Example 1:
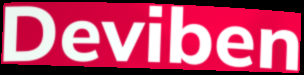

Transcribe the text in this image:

Deviben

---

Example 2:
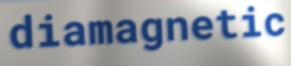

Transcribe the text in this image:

diamagnetic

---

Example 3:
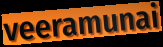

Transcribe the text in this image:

veeramunai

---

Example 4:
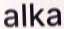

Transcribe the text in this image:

alka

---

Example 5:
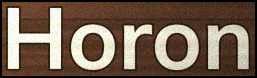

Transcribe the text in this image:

Horon